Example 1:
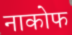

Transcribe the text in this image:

नाकोफ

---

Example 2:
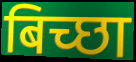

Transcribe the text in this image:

बिच्छा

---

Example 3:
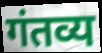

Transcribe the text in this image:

गंतव्य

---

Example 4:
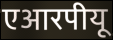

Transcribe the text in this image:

एआरपीयू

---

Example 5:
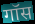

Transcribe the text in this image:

गॉस